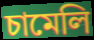
চামেলি